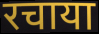
रचाया